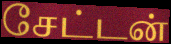
சேட்டன்